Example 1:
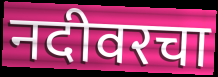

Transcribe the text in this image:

नदीवरचा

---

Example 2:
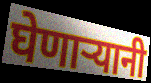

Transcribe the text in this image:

घेणाऱ्यानी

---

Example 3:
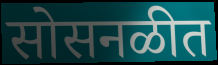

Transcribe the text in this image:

सोसनळीत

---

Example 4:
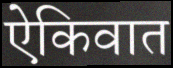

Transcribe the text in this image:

ऐकिवात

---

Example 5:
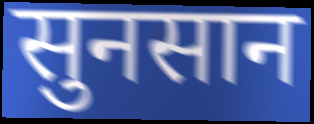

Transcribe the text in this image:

सुनसान